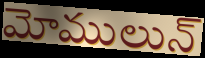
మోములున్